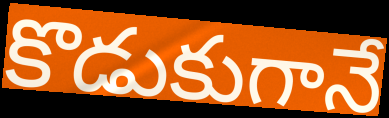
కొడుకుగానే